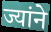
ज्यांने